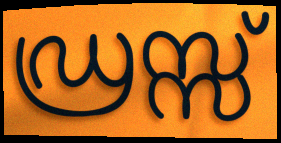
ഡ്രസ്സ്